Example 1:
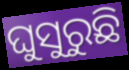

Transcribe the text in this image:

ଘୁସୁରୁଛି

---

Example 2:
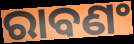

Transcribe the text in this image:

ରାବଣଂ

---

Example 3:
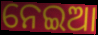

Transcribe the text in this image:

ନେଇଆ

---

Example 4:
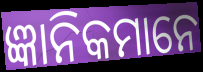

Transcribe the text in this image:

ଜ୍ଞାନିକମାନେ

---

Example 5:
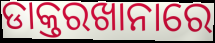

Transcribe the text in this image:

ଡାକ୍ତରଖାନାରେ